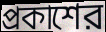
প্রকাশের